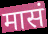
मासं